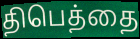
திபெத்தை